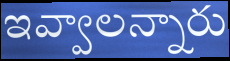
ఇవ్వాలన్నారు